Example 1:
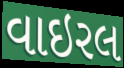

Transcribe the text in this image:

વાઇરલ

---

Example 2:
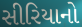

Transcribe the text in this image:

સીરિયાનો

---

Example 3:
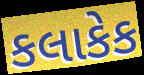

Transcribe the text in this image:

કલાકેક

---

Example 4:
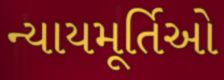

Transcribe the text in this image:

ન્યાયમૂર્તિઓ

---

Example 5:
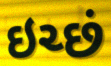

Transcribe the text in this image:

ઇચ્છં